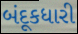
બંદૂકધારી